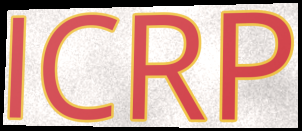
ICRP